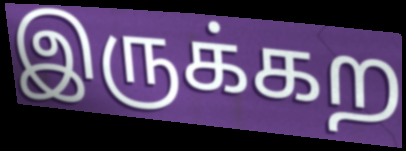
இருக்கற